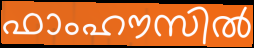
ഫാംഹൗസിൽ